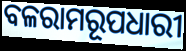
ବଳରାମରୂପଧାରୀ